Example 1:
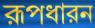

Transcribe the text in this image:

রূপধারন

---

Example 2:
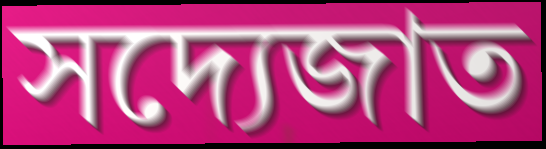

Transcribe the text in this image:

সদ্যেজাত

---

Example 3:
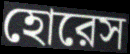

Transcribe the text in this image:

হোরেস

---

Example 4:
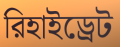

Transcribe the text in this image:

রিহাইড্রেট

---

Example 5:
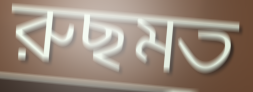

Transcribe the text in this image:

রুছমত